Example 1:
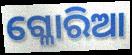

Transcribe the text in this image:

ଗ୍ଳୋରିଆ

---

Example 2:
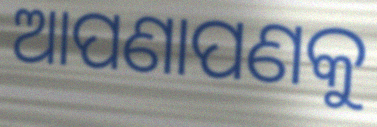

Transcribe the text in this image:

ଆପଣାପଣକୁ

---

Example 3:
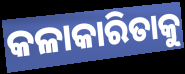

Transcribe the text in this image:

କଳାକାରିତାକୁ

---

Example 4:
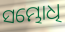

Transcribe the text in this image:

ସମ୍ଭୋଧି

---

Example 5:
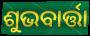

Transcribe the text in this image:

ଶୁଭବାର୍ତ୍ତା